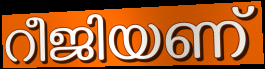
റീജിയണ്